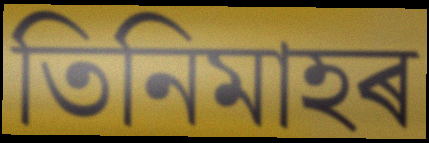
তিনিমাহৰ